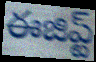
ఈజిప్ట్